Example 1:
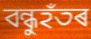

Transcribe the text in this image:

বন্ধুহঁতৰ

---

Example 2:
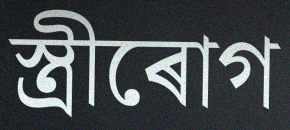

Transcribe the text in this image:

স্ত্ৰীৰোগ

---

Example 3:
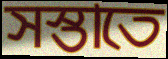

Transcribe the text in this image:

সস্তাতে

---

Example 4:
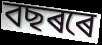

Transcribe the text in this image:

বছৰৰে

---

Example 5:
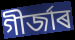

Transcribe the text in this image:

গীৰ্জাৰ